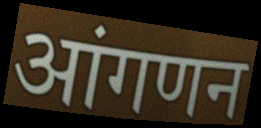
आंगणन